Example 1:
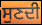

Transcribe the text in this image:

ਸੁਣਦੀ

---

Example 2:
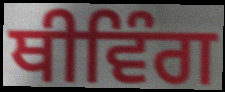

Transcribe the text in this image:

ਥੀਵਿੰਗ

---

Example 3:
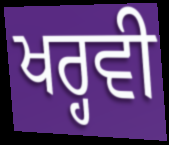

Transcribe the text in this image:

ਖਰ੍ਹਵੀ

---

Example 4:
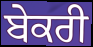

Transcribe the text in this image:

ਬੇਕਰੀ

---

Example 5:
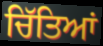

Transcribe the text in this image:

ਚਿੱਤਿਆਂ